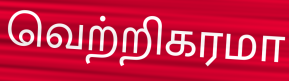
வெற்றிகரமா